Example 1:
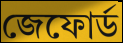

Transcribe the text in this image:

জেফোর্ড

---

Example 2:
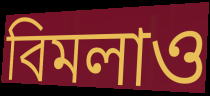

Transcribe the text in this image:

বিমলাও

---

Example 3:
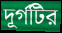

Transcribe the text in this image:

দূর্গটির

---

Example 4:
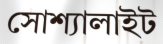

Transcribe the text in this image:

সোশ্যালাইট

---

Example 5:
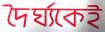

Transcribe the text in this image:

দৈর্ঘ্যকেই